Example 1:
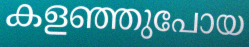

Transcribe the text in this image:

കളഞ്ഞുപോയ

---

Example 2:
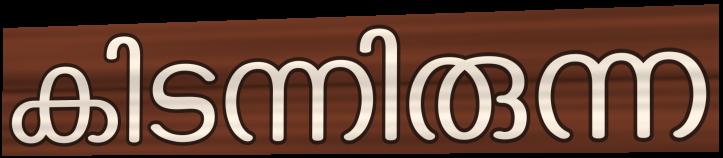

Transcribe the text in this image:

കിടന്നിരുന്ന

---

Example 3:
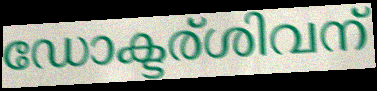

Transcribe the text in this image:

ഡോക്ടര്ശിവന്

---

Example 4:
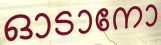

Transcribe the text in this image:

ഓടാനോ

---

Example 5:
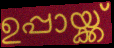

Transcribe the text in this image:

ഉപ്പായ്ക്ക്